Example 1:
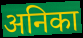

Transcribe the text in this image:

अनिका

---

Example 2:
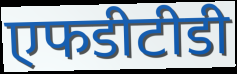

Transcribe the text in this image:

एफडीटीडी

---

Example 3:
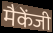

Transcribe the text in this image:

मैकेंजी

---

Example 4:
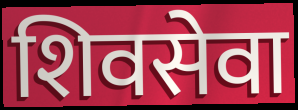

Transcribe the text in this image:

शिवसेवा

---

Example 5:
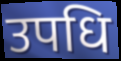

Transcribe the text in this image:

उपधि